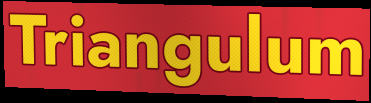
Triangulum